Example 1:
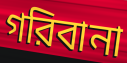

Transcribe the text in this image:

গরিবানা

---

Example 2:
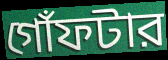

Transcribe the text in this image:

গোঁফটার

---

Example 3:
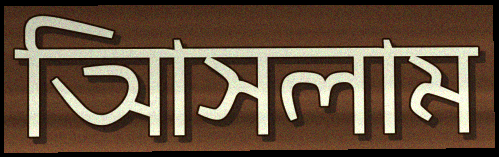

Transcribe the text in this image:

আিসলাম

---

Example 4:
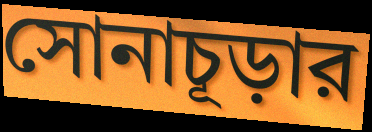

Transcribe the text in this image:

সোনাচূড়ার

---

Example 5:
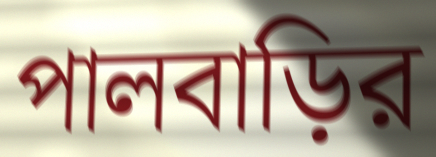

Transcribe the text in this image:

পালবাড়ির